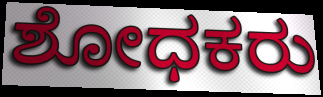
ಶೋಧಕರು